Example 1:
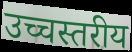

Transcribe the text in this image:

उच्चस्तरीय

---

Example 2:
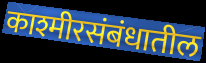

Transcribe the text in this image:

काश्मीरसंबंधातील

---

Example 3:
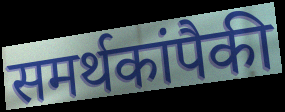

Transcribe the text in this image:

समर्थकांपैकी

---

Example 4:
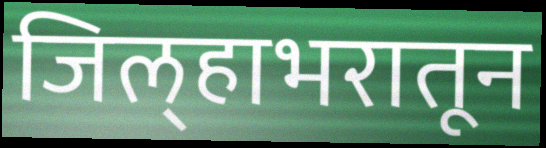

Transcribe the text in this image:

जिल्हाभरातून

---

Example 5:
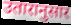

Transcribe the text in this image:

उतारानुसार